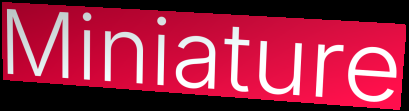
Miniature